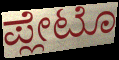
ಪ್ಲೇಟೊ